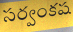
సర్వంకష